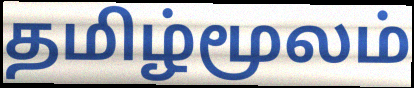
தமிழ்மூலம்